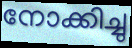
നോക്കിച്ചു